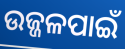
ଉଜ୍ଜଳପାଇଁ